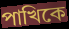
পাখিকে